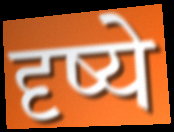
दृष्ये